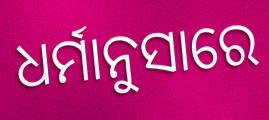
ଧର୍ମାନୁସାରେ